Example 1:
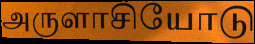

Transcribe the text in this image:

அருளாசியோடு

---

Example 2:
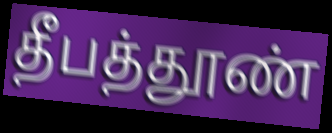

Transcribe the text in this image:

தீபத்தூண்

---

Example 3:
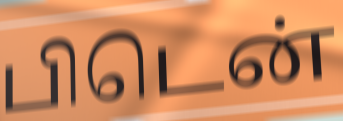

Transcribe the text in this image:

பிடென்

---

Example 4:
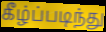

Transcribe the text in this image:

கீழ்ப்படிந்து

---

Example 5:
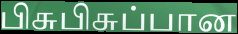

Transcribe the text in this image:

பிசுபிசுப்பான